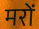
मरों